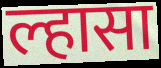
ल्हासा